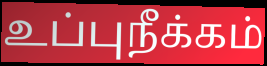
உப்புநீக்கம்